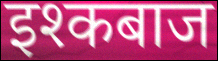
इश्कबाज